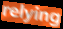
relying